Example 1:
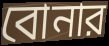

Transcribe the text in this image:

বোনার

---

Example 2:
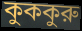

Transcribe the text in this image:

কুককুরু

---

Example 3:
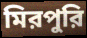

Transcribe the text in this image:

মিরপুরি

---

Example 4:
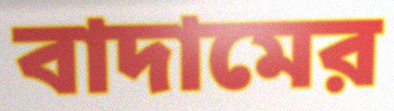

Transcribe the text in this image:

বাদামের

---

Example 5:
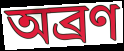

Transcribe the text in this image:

অব্রণ